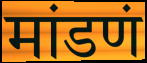
मांडणं